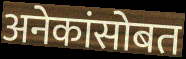
अनेकांसोबत